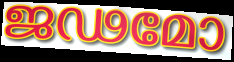
ജഢമോ